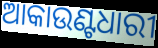
ଆକାଉଣ୍ଟଧାରୀ